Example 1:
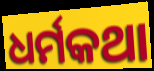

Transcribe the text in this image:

ଧର୍ମକଥା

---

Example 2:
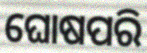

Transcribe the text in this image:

ଘୋଷପରି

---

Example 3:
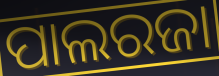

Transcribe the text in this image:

ପାଲରଜା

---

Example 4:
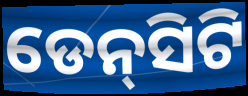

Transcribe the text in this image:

ଡେନ୍‌ସିଟି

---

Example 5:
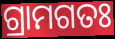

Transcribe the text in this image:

ଗ୍ରାମଗତଃ